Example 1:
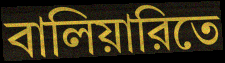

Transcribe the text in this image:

বালিয়ারিতে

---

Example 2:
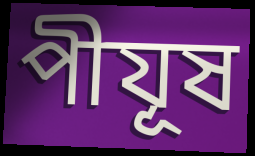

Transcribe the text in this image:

পীযূষ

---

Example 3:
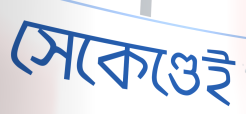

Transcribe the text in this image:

সেকেণ্ডেই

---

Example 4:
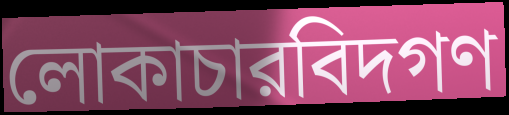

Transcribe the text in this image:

লোকাচারবিদগণ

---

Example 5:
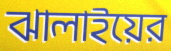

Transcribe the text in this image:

ঝালাইয়ের